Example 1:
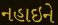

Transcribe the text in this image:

નહાઇને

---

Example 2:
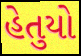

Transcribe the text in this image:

હેતુયો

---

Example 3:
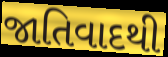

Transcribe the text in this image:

જાતિવાદથી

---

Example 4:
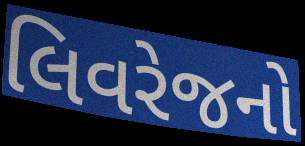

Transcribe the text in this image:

લિવરેજનો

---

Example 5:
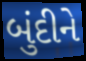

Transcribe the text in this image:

બુંદીને